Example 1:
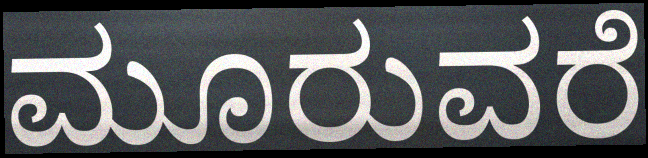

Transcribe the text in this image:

ಮೂರುವರೆ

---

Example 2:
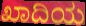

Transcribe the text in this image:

ಖಾದಿಯ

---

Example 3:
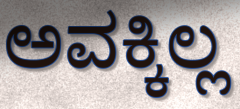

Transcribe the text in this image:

ಅವಕ್ಕಿಲ್ಲ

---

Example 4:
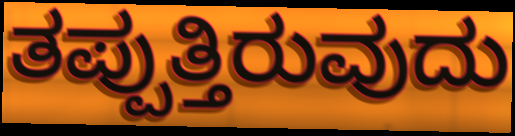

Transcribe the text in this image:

ತಪ್ಪುತ್ತಿರುವುದು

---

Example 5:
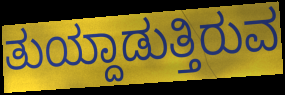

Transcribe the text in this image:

ತುಯ್ದಾಡುತ್ತಿರುವ